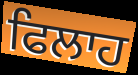
ਫਿਲਾਹ